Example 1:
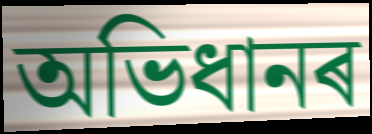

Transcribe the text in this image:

অভিধানৰ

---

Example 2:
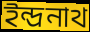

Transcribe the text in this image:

ইন্দ্ৰনাথ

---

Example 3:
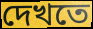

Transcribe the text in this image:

দেখতে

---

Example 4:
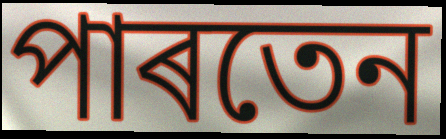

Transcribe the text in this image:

পাৰতেন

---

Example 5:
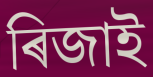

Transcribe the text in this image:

ৰিজাই